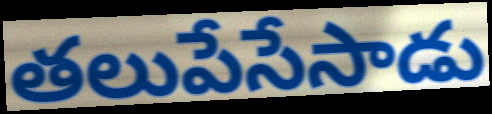
తలుపేసేసాడు